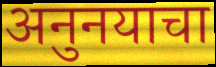
अनुनयाचा